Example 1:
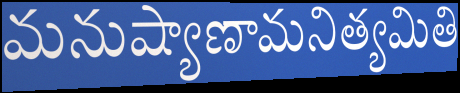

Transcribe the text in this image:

మనుష్యాణామనిత్యమితి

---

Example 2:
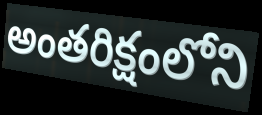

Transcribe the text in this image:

అంతరిక్షంలోని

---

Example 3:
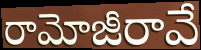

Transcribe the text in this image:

రామోజీరావే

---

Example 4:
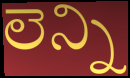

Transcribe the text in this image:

లెన్ని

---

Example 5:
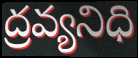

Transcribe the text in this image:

ద్రవ్యనిధి